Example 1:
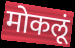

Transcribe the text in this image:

मोकलूं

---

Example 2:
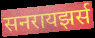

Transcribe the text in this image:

सनरायझर्स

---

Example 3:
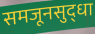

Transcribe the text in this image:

समजूनसुद्धा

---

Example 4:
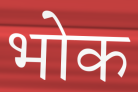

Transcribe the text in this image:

भोक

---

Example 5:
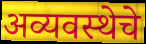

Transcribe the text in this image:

अव्यवस्थेचे